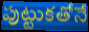
పుట్టుకతోనే